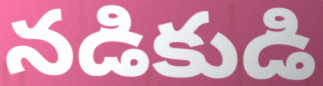
నడికుడి